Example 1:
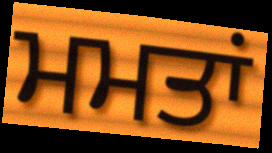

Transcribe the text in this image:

ਮਮਤਾਂ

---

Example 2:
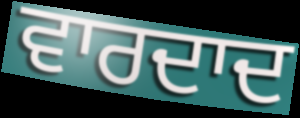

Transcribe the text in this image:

ਵਾਰਦਾਦ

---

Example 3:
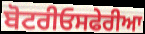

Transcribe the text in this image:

ਬੋਟਰੀਓਸਫੇਰੀਆ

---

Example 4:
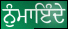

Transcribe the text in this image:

ਨੁੰਮਾਇੰਦੇ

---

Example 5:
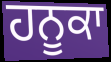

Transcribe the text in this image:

ਹਨੂਕਾ